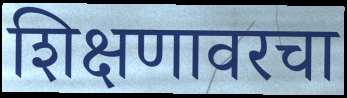
शिक्षणावरचा